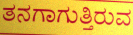
ತನಗಾಗುತ್ತಿರುವ